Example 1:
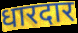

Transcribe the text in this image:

धारदार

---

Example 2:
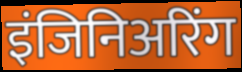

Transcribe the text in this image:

इंजिनिअरिंग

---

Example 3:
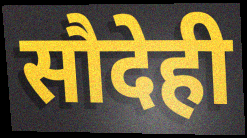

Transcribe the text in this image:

सौदेही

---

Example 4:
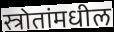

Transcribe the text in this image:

स्त्रोतांमधील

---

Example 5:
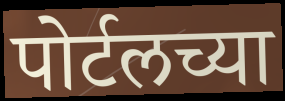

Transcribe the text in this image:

पोर्टलच्या